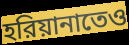
হরিয়ানাতেও